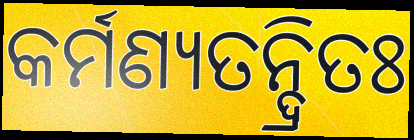
କର୍ମଣ୍ୟତନ୍ଦ୍ରିତଃ